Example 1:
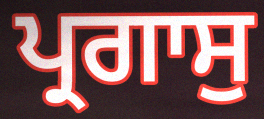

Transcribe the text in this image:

ਪ੍ਰਗਾਸੁ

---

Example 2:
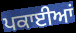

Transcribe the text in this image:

ਪਕਾਈਆਂ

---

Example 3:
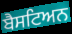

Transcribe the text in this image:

ਬੈਸਟਿਅਨ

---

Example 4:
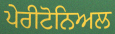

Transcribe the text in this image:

ਪੇਰੀਟੋਨਿਅਲ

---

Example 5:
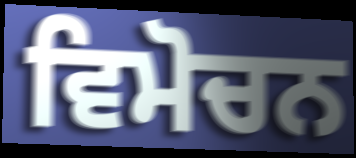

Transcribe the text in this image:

ਵਿਮੋਚਨ